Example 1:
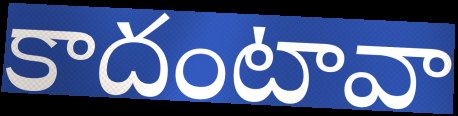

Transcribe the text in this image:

కాదంటావా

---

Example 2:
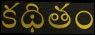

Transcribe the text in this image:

కథితం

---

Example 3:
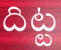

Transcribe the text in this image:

దిట్ట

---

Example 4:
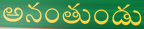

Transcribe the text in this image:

అనంతుండు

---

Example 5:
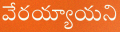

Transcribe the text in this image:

వేరయ్యాయని